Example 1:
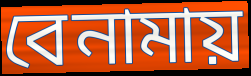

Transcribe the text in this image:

বেনামায়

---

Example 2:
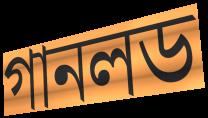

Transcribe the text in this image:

গানলড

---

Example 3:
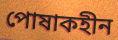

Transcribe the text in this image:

পোষাকহীন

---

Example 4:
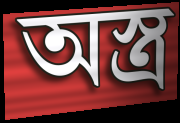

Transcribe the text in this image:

অস্ত্র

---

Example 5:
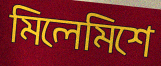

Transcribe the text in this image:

মিলেমিশে